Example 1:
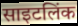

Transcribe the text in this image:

साइटलिंक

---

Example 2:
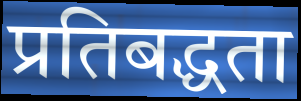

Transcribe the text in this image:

प्रतिबद्धता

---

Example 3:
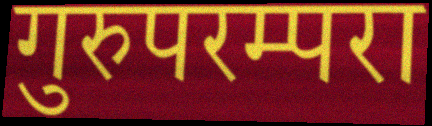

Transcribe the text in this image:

गुरुपरम्परा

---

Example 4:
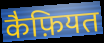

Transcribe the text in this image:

कैफ़ियत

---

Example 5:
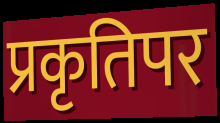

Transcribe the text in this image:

प्रकृतिपर